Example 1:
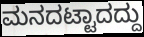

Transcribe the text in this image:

ಮನದಟ್ಟಾದದ್ದು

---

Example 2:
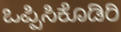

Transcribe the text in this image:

ಒಪ್ಪಿಸಿಕೊಡಿರಿ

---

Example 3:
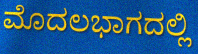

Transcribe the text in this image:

ಮೊದಲಭಾಗದಲ್ಲಿ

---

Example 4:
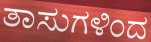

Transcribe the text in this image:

ತಾಸುಗಳಿಂದ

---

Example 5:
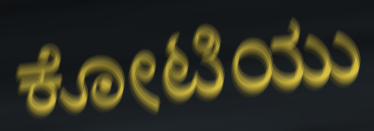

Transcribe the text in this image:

ಕೋಟಿಯು